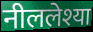
नीललेश्या